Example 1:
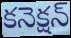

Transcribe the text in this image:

కనెక్షన్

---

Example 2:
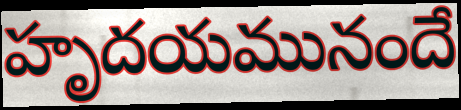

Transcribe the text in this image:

హృదయమునందే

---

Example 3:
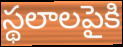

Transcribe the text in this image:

స్థలాలపైకి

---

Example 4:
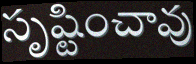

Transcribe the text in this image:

సృష్టించావు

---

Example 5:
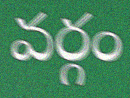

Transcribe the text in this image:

వర్గం